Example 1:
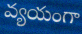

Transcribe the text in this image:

వ్యయంగా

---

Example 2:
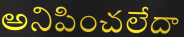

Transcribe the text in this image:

అనిపించలేదా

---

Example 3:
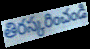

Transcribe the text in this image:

తిరస్కరించండి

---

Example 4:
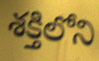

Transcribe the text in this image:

శక్తిలోని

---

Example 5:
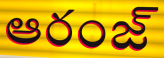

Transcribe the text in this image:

ఆరంజ్